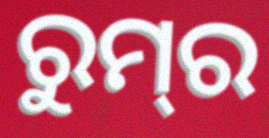
ରୁମ୍‌ର